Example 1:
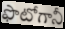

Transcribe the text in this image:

ఫొటోగానీ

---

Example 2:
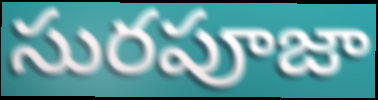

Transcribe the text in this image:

సురపూజా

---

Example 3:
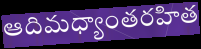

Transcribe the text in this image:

ఆదిమధ్యాంతరహిత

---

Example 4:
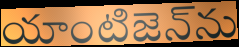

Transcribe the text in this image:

యాంటిజెన్‌ను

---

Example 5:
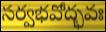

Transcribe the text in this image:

సర్వభవోద్భవః